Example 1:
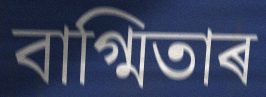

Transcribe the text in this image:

বাগ্মিতাৰ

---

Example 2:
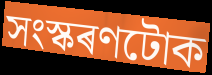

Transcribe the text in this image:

সংস্কৰণটোক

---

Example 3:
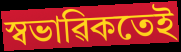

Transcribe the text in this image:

স্বভাৱিকতেই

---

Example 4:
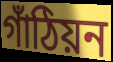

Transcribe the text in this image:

গাঁঠিয়ন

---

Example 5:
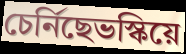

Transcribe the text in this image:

চেৰ্নিছেভস্কিয়ে